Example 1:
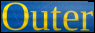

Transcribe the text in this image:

Outer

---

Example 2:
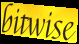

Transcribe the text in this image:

bitwise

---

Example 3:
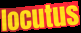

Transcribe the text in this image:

locutus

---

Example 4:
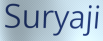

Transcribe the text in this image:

Suryaji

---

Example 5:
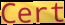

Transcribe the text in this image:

Cert